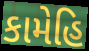
કામેહિ